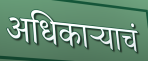
अधिकाऱ्याचं